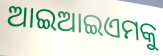
ଆଇଆଇଏମକୁ